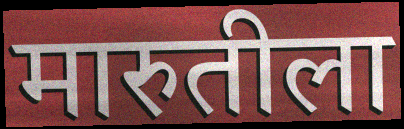
मारुतीला